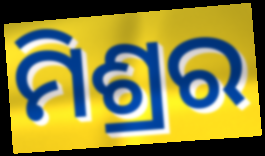
ମିଶ୍ରର